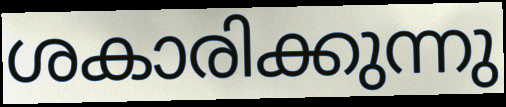
ശകാരിക്കുന്നു